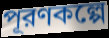
পূরণকল্পে